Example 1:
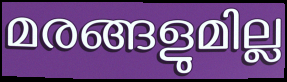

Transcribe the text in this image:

മരങ്ങളുമില്ല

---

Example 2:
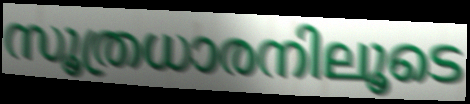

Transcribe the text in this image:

സൂത്രധാരനിലൂടെ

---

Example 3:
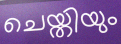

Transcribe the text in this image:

ചെയ്തിയും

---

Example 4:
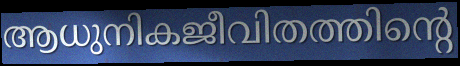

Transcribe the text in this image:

ആധുനികജീവിതത്തിന്റെ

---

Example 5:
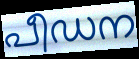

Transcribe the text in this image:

പീഡന